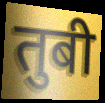
तुबी